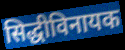
सिद्धीविनायक